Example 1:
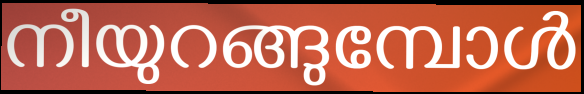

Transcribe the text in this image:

നീയുറങ്ങുമ്പോൾ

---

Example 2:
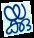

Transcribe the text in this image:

യ്ക്കു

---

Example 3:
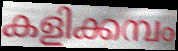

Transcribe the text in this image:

കളിക്കമ്പം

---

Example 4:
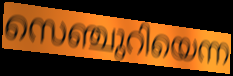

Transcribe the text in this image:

സെഞ്ചുറിയെന്ന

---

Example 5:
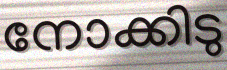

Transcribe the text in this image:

നോക്കിടു